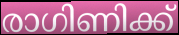
രാഗിണിക്ക്